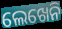
ଲେଖେନି